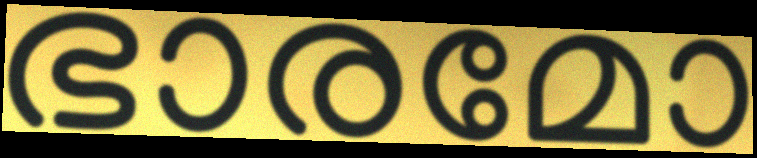
ഭാരമോ